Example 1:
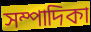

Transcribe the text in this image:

সম্পাদিকা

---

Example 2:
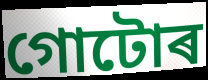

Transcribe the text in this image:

গোটোৰ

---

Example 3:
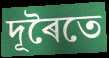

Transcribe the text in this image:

দূৰৈতে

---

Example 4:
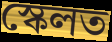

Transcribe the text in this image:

স্কেলত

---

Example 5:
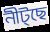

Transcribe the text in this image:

নীট্‌ছে